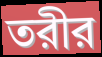
তরীর